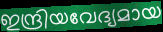
ഇന്ദ്രിയവേദ്യമായ